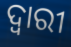
ଦ୍ଵାରୀ